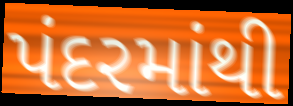
પંદરમાંથી